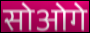
सोओगे